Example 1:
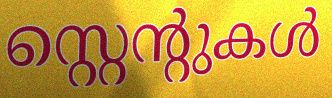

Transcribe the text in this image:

സ്റ്റെന്റുകൾ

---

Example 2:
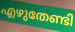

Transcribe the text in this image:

എഴുതേണ്ടി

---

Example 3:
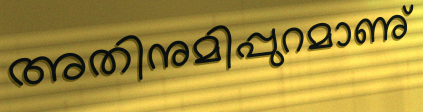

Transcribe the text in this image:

അതിനുമിപ്പുറമാണു്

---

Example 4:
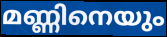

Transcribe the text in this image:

മണ്ണിനെയും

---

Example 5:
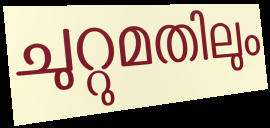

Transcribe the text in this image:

ചുറ്റുമതിലും